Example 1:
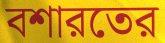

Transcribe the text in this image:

বশারতের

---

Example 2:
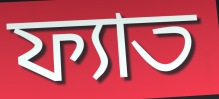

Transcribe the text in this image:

ফ্যাত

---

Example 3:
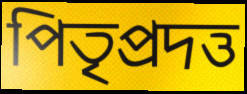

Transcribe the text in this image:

পিতৃপ্রদত্ত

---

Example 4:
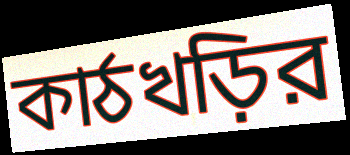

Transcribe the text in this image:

কাঠখড়ির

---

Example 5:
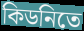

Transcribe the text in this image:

কিডনিতে